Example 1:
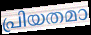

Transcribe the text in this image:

പ്രിയതമാ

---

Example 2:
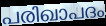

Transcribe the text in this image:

പരിഖാപദം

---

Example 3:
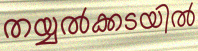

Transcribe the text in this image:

തയ്യൽക്കടയിൽ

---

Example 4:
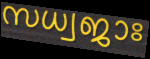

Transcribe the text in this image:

സധ്വജാഃ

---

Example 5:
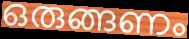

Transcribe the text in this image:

ഒരുങ്ങണം